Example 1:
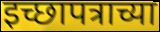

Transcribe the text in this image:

इच्छापत्राच्या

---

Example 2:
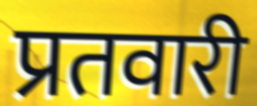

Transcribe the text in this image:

प्रतवारी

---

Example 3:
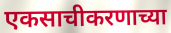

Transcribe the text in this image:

एकसाचीकरणाच्या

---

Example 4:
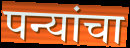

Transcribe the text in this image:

पन्यांचा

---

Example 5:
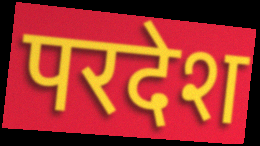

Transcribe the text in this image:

परदेश